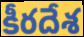
కీరదేశ